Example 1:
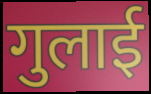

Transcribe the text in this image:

गुलाई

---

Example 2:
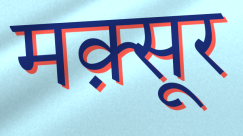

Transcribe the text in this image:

मक़्सूर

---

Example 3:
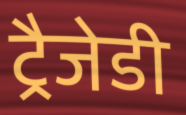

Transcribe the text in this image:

ट्रैजेडी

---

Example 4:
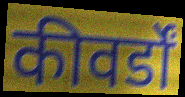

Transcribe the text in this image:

कीवर्डों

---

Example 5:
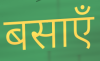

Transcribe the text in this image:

बसाएँ